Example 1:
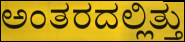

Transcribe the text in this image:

ಅಂತರದಲ್ಲಿತ್ತು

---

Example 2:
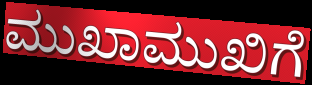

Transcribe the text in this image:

ಮುಖಾಮುಖಿಗೆ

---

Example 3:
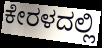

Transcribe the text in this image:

ಕೇರಳದಲ್ಲಿ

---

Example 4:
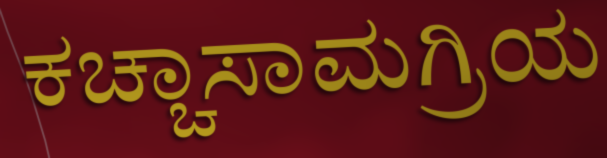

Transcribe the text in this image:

ಕಚ್ಚಾಸಾಮಗ್ರಿಯ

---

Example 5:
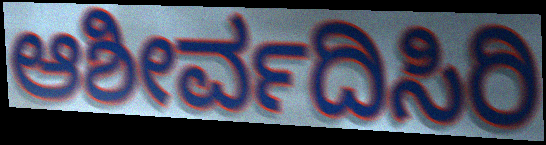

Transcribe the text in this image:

ಆಶೀರ್ವದಿಸಿರಿ